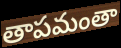
తాపమంతా